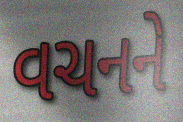
વચનને